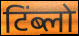
टिंब्लो